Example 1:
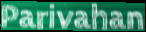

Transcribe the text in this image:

Parivahan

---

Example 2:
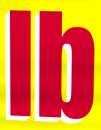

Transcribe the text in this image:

Ib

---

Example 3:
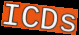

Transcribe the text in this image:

ICDs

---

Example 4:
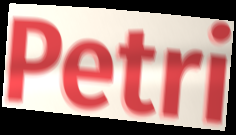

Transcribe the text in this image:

Petri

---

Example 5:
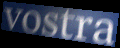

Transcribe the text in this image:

vostra